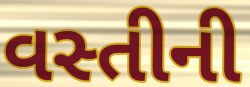
વસ્તીની